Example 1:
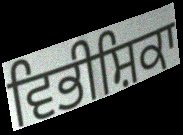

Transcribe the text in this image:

ਵਿਭੀਸ਼ਿਕਾ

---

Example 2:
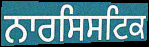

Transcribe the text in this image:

ਨਾਰਸਿਸਟਿਕ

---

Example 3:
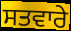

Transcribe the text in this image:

ਸਤਵਾਰੇ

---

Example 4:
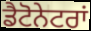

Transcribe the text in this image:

ਡੈਟੋਨੇਟਰਾਂ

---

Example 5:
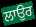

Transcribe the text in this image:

ਲਾਉਰ